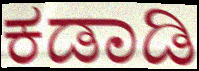
ಕಡಾಡಿ